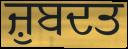
ਜ਼ੁਬਦਤ